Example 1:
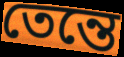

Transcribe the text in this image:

তেন্তে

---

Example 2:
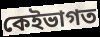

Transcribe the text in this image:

কেইভাগত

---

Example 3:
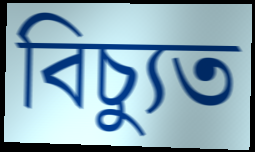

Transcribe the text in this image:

বিচ্যুত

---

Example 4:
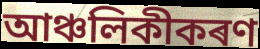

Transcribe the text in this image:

আঞ্চলিকীকৰণ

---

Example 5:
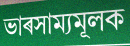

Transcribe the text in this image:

ভাৰসাম্যমূলক